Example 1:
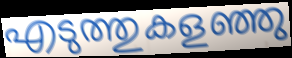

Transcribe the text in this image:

എടുത്തുകളഞ്ഞു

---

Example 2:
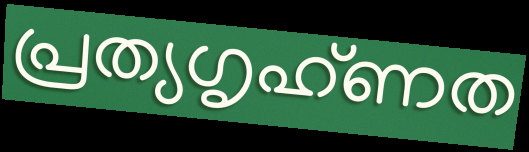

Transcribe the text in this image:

പ്രത്യഗൃഹ്ണത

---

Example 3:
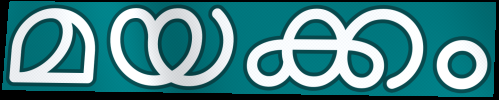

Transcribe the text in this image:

മയക്കം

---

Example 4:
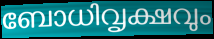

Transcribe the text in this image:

ബോധിവൃക്ഷവും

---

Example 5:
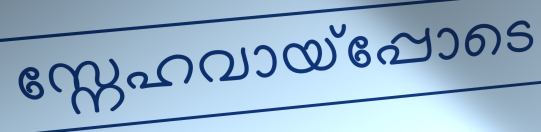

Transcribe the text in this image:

സ്നേഹവായ്പ്പോടെ